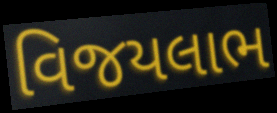
વિજયલાભ